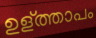
ഉള്ത്താപം